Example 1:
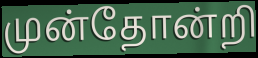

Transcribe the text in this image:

முன்தோன்றி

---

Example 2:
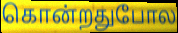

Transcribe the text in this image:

கொன்றதுபோல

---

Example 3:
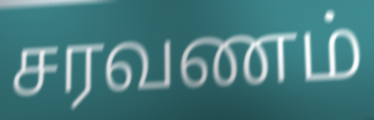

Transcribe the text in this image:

சரவணம்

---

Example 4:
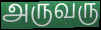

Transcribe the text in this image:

அருவரு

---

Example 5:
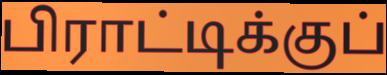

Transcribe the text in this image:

பிராட்டிக்குப்